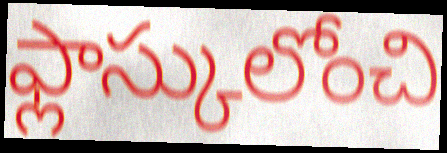
ఫ్లాస్కులోంచి